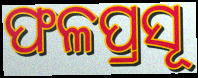
ଫଳପ୍ରସୂ